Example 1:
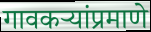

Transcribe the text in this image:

गावकऱ्यांप्रमाणे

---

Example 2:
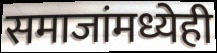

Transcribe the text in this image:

समाजांमध्येही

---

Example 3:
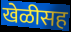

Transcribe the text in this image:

खेळीसह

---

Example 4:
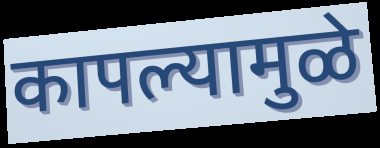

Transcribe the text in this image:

कापल्यामुळे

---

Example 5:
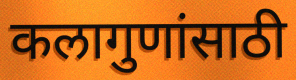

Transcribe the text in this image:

कलागुणांसाठी